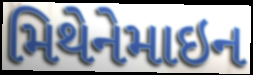
મિથેનેમાઇન